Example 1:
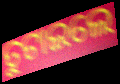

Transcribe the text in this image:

ତୁଟାଇଲେ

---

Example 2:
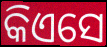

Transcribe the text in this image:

କିଏସେ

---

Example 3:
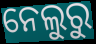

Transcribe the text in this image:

ନେଲୁରୁ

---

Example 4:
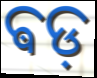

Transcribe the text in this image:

ଵଡ଼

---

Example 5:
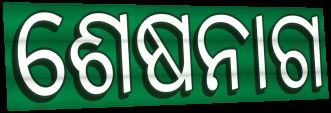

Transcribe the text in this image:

ଶେଷନାଗ